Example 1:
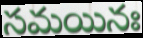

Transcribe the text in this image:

సమయినః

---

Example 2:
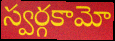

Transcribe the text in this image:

స్వర్గకామో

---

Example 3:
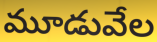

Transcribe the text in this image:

మూడువేల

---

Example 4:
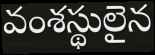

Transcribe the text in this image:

వంశస్థులైన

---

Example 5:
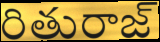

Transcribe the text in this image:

రితురాజ్